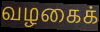
வழகைக்